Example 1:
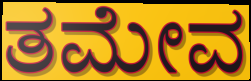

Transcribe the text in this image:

ತಮೇವ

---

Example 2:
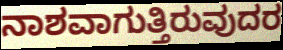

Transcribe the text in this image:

ನಾಶವಾಗುತ್ತಿರುವುದರ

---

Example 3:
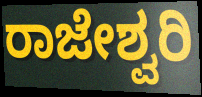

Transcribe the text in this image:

ರಾಜೇಶ್ವರಿ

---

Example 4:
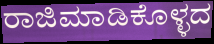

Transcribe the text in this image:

ರಾಜಿಮಾಡಿಕೊಳ್ಳದ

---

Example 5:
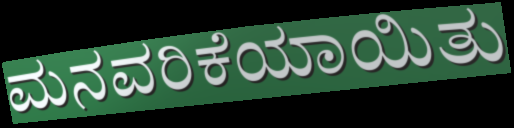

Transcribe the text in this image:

ಮನವರಿಕೆಯಾಯಿತು